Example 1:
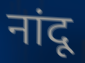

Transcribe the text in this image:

नांदू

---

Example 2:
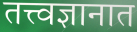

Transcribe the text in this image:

तत्त्वज्ञानात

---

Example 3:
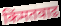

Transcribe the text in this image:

किंमतवाढ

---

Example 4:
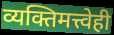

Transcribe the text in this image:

व्यक्तिमत्त्वेही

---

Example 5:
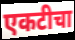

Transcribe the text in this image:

एकटीचा